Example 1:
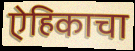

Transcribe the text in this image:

ऐहिकाचा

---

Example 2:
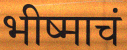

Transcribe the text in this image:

भीष्माचं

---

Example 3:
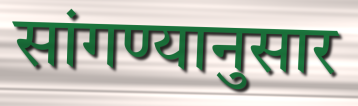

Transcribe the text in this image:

सांगण्यानुसार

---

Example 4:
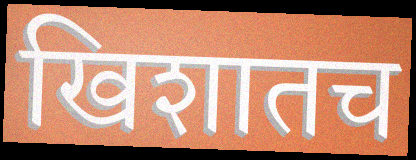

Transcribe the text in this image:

खिशातच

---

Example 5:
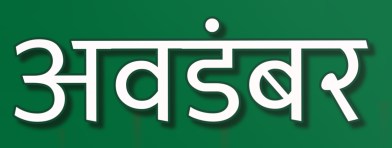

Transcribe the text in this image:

अवडंबर